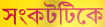
সংকটটিকে